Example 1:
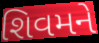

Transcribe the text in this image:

શિવમને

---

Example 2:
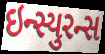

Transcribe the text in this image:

ઇન્સ્યુરન્સ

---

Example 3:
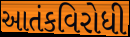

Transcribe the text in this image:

આતંકવિરોધી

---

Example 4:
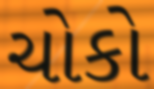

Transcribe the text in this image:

ચોકો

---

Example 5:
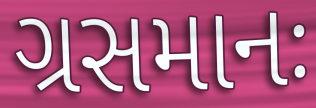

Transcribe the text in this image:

ગ્રસમાનઃ